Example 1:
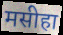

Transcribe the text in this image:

मसीहा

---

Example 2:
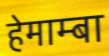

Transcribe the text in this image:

हेमाम्बा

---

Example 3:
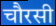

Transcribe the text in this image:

चौरसी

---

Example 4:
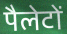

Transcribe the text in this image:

पैलेटों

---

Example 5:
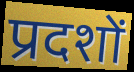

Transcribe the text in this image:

प्रदशों